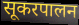
सूकरपालन